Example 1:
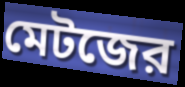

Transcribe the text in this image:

মেটজের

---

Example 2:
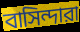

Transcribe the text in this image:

বাসিন্দারা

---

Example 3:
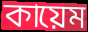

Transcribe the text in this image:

কায়েম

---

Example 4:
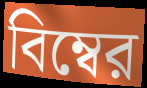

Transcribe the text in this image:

বিম্বের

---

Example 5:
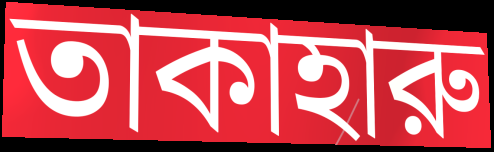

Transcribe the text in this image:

তাকাহারু